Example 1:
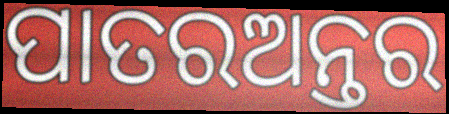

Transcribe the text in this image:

ପାତରଅନ୍ତର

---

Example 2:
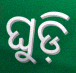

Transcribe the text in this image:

ଘୁଡ଼ି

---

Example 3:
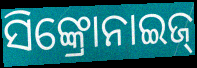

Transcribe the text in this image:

ସିଙ୍କ୍ରୋନାଇଜ୍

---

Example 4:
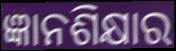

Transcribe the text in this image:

ଜ୍ଞାନଶିକ୍ଷାର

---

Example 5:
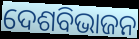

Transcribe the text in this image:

ଦେଶବିଭାଜନ